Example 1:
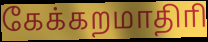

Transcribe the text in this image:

கேக்கறமாதிரி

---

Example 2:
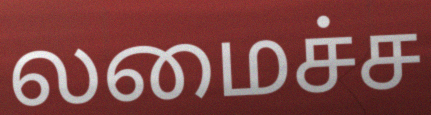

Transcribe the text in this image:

லமைச்ச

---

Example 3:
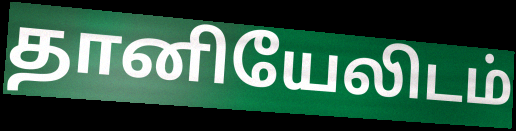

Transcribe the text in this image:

தானியேலிடம்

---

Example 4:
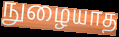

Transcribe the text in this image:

நுழையாத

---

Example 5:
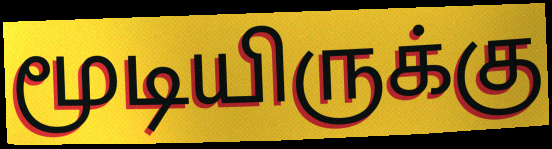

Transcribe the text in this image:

மூடியிருக்கு